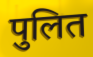
पुलित